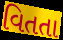
વિતતા